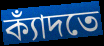
ক্যাঁদতে